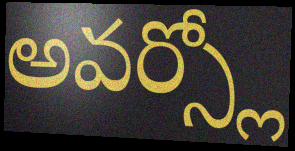
అవర్స్లో